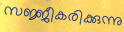
സജ്ജീകരിക്കുന്നു